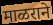
माळराने